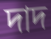
দাদ